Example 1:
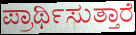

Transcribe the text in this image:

ಪ್ರಾರ್ಥಿಸುತ್ತಾರೆ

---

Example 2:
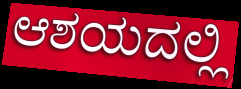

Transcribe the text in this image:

ಆಶಯದಲ್ಲಿ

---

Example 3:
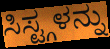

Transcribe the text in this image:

ಸಿಸ್ಟ್ಗಳನ್ನು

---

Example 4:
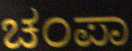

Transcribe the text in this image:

ಚಂಪಾ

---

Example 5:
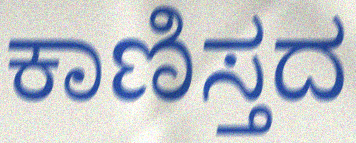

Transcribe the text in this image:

ಕಾಣಿಸ್ತದ